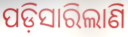
ପଡ଼ିସାରିଲାଣି